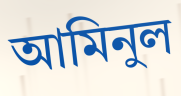
আমিনুল